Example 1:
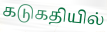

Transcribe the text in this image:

கடுகதியில்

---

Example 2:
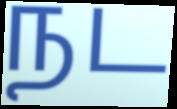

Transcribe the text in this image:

நட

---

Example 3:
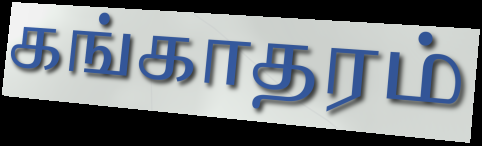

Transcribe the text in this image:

கங்காதரம்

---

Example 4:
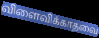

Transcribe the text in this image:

விளைவிக்காதவை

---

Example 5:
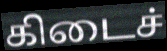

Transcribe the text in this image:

கிடைச்